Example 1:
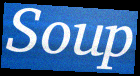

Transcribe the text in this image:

Soup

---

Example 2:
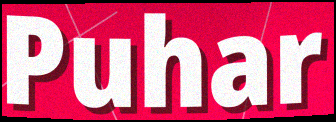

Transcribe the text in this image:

Puhar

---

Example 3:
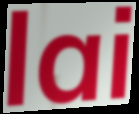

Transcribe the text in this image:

Iai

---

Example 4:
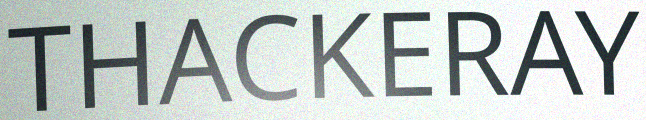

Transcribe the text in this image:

THACKERAY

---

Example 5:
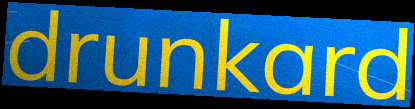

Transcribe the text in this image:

drunkard